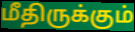
மீதிருக்கும்